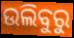
ଉଲିବୁରୁ